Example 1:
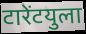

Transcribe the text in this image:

टारेंटयुला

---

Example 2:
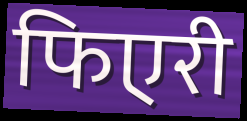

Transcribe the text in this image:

फिएरी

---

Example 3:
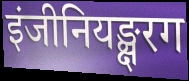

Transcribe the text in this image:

इंजीनियङ्क्षरग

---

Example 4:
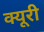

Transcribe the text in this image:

क्यूरी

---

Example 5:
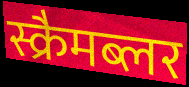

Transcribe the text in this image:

स्क्रैमब्लर